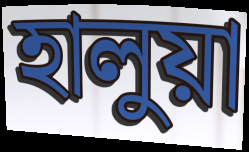
হালুয়া